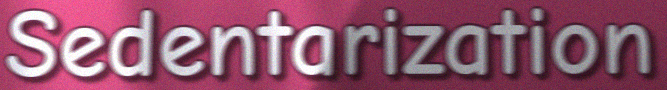
Sedentarization